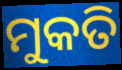
ମୁକତି